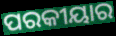
ପରକୀୟାର